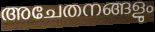
അചേതനങ്ങളും